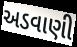
અડવાણી